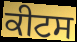
ਕੀਟਸ